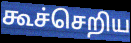
கூச்செறிய